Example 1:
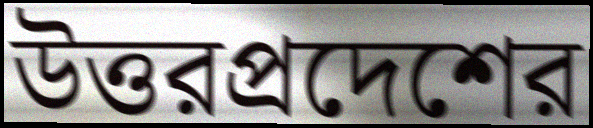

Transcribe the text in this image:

উত্তরপ্রদেশের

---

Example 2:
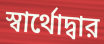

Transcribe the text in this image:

স্বার্থোদ্বার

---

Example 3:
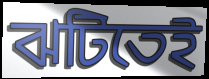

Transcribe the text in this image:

ঝটিতেই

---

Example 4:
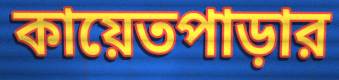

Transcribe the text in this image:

কায়েতপাড়ার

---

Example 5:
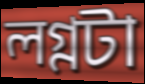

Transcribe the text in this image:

লগ্নটা